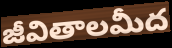
జీవితాలమీద